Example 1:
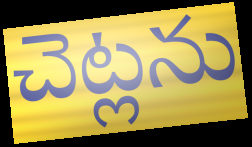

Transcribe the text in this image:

చెట్లను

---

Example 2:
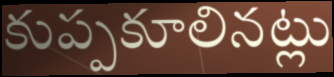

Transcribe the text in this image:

కుప్పకూలినట్లు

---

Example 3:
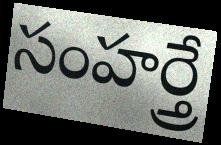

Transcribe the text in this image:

సంహర్త్రే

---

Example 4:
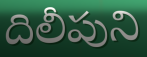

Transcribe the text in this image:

దిలీపుని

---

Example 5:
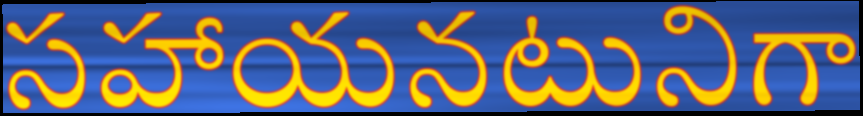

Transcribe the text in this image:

సహాయనటునిగా